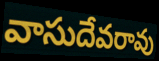
వాసుదేవరావు